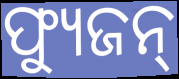
ଫ୍ୟୁଜନ୍